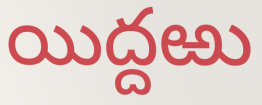
యిద్దఱు